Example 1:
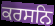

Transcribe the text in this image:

ਕਰਸਨਿ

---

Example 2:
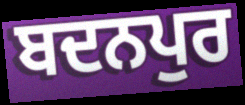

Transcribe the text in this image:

ਬਦਨਪੁਰ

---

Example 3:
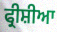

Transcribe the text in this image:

ਫ੍ਰੀਸ਼ੀਆ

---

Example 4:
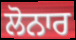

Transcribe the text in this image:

ਲੋਨਾਰ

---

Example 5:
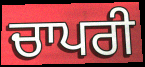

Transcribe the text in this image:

ਚਾਪਰੀ